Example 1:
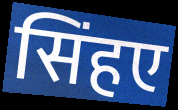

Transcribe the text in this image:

सिंहए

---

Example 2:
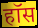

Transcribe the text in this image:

हॉस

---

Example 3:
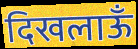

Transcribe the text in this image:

दिखलाऊँ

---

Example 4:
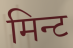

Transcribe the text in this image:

मिन्ट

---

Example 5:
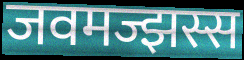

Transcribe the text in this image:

जवमज्झस्स